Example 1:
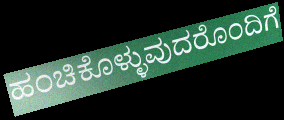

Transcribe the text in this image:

ಹಂಚಿಕೊಳ್ಳುವುದರೊಂದಿಗೆ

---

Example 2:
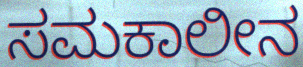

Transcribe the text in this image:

ಸಮಕಾಲೀನ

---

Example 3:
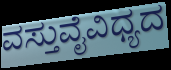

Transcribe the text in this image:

ವಸ್ತುವೈವಿಧ್ಯದ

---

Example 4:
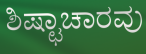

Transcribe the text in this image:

ಶಿಷ್ಟಾಚಾರವು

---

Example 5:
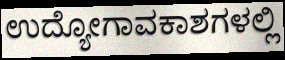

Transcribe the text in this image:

ಉದ್ಯೋಗಾವಕಾಶಗಳಲ್ಲಿ